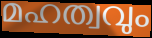
മഹത്വവും